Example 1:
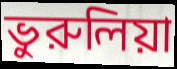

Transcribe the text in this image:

ভুরুলিয়া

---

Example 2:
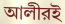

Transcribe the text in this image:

আলীরই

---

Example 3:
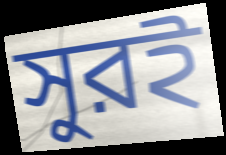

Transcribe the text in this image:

সুরই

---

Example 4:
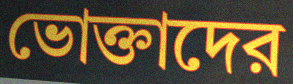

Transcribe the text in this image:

ভোক্তাদের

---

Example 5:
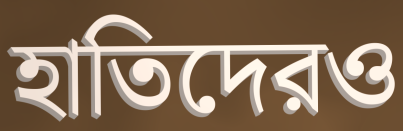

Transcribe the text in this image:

হাতিদেরও